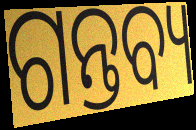
ଗନ୍ତବ୍ୟ